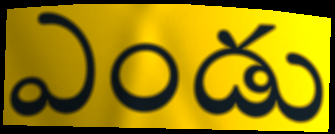
ఎండు